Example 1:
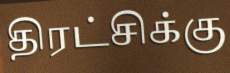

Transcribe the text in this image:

திரட்சிக்கு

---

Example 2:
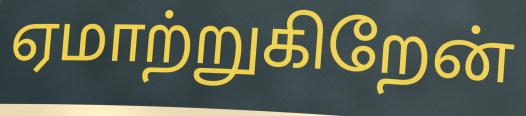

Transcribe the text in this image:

ஏமாற்றுகிறேன்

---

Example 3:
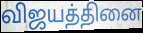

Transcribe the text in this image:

விஜயத்தினை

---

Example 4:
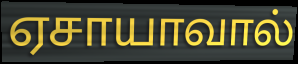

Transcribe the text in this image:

ஏசாயாவால்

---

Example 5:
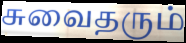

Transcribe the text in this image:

சுவைதரும்